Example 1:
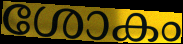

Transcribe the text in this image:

ശോകം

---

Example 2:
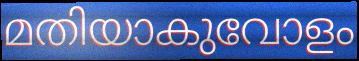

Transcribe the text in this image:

മതിയാകുവോളം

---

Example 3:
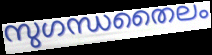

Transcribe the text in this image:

സുഗന്ധതൈലം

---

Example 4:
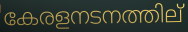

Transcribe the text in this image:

കേരളനടനത്തില്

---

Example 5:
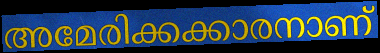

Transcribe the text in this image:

അമേരിക്കക്കാരനാണ്